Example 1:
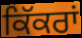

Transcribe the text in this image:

ਕਿੱਕਰਾਂ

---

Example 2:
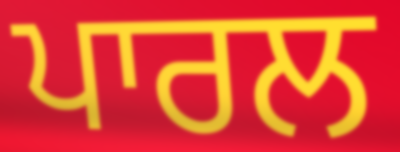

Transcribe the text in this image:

ਪਾਰਲ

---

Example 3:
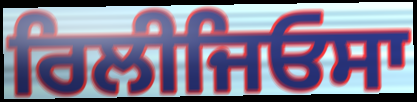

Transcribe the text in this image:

ਰਿਲੀਜਿਓਸਾ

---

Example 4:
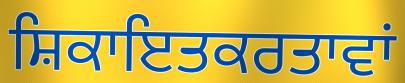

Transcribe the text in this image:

ਸ਼ਿਕਾਇਤਕਰਤਾਵਾਂ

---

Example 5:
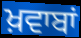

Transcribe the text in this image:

ਖ਼ਵਾਬਾਂ